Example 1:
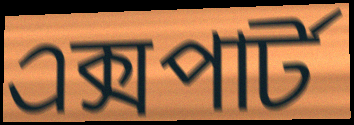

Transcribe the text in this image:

এক্সপার্ট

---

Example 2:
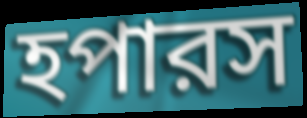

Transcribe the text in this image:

হপারস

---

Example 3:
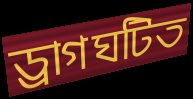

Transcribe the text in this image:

ড্রাগঘটিত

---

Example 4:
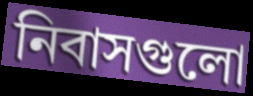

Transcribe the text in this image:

নিবাসগুলো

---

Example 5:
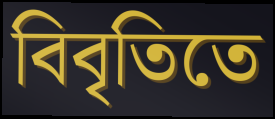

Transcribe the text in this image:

বিবৃতিতে